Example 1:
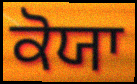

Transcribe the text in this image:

ਕੋਯਾ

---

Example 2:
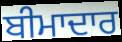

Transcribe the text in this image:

ਬੀਮਾਦਾਰ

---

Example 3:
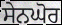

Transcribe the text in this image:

ਸੇਨਘੋਰ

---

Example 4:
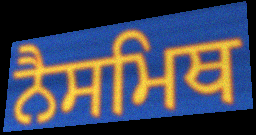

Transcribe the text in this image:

ਨੈਸਮਿਥ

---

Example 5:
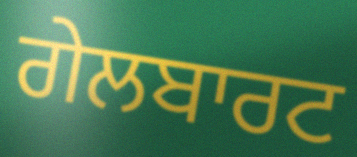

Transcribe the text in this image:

ਗੇਲਬਾਰਟ